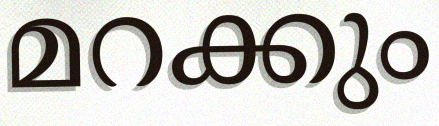
മറക്കും